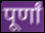
पूर्णां